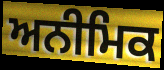
ਅਨੀਮਿਕ